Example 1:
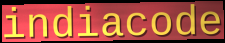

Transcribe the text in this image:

indiacode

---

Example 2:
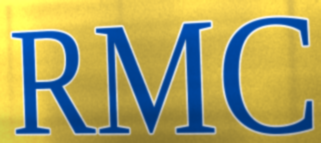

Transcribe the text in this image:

RMC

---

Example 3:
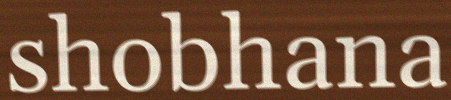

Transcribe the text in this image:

shobhana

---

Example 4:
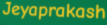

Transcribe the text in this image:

Jeyaprakash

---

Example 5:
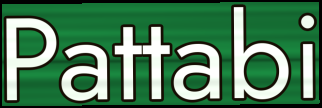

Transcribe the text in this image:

Pattabi